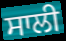
ਸਾਲੀ